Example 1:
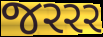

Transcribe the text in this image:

જરરર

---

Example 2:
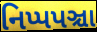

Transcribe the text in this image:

નિપ્પપઞ્ચા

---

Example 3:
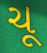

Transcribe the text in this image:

ચૂ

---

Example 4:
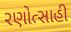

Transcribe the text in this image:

રણોત્સાહી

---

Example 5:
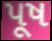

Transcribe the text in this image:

પૂષ